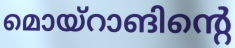
മൊയ്റാങിന്റെ